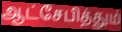
ஆட்சேபித்தும்